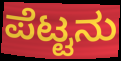
ಪೆಟ್ಟನು